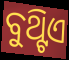
ବୁଥ୍ଟିଏ